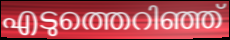
എടുത്തെറിഞ്ഞ്